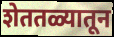
शेततळ्यातून